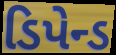
ડિપેન્ડ